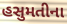
હસુમતીના